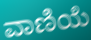
ವಾಣಿಯೆ